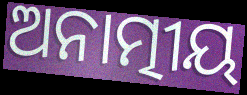
ଅନାତ୍ମୀୟ